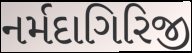
નર્મદાગિરિજી